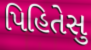
પિહિતેસુ